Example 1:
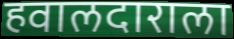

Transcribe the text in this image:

हवालदाराला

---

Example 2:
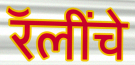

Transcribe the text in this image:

रॅलींचे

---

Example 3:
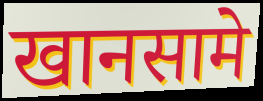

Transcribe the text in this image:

खानसामे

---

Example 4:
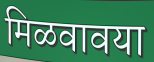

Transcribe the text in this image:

मिळवावया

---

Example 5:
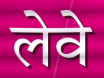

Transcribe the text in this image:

लेवे